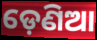
ଡ଼େଣିଆ